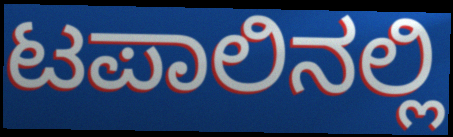
ಟಪಾಲಿನಲ್ಲಿ